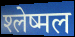
श्लेष्मल